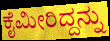
ಕೈಮೀರಿದ್ದನ್ನು